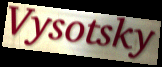
Vysotsky